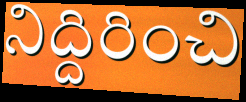
నిద్దిరించి